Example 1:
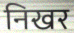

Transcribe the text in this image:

निखर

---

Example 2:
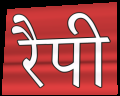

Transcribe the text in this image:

रैपी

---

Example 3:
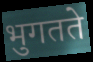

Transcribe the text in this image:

भुगतते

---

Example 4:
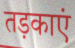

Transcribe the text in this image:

तड़काएं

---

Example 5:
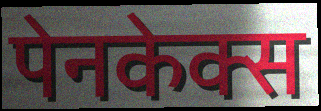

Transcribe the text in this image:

पेनकेक्स